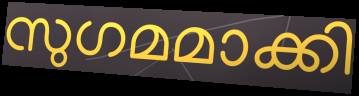
സുഗമമാക്കി